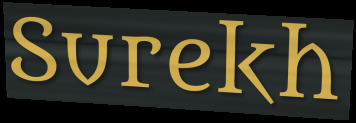
Surekh